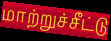
மாற்றுச்சீட்டு